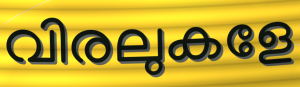
വിരലുകളേ